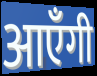
आएँगी